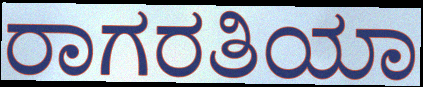
ರಾಗರತಿಯಾ